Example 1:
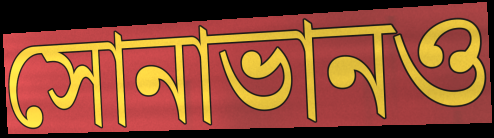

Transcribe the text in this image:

সোনাভানও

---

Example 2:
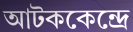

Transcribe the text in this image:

আটককেন্দ্রে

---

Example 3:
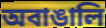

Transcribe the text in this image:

অবাঙালি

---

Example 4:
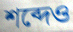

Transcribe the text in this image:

শব্দেও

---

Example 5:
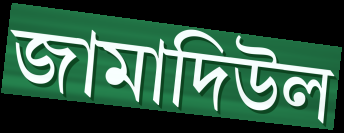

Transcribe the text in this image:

জামাদিউল